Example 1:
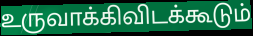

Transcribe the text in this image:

உருவாக்கிவிடக்கூடும்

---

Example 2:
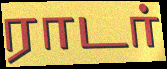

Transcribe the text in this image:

ராடர்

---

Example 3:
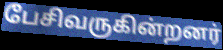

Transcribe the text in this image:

பேசிவருகின்றனர்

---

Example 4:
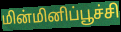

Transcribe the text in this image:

மின்மினிப்பூச்சி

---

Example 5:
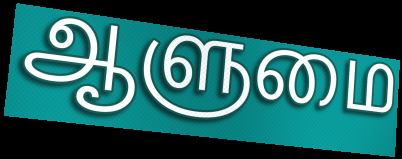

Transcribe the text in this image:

ஆளுமை